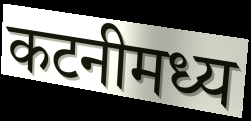
कटनीमध्य